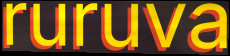
ruruva